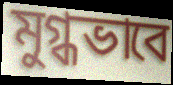
মুগ্ধভাবে